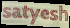
satyesh